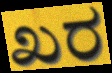
ಖರ